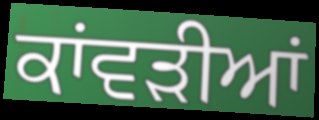
ਕਾਂਵੜੀਆਂ